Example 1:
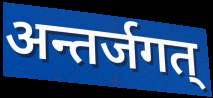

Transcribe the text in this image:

अन्तर्जगत्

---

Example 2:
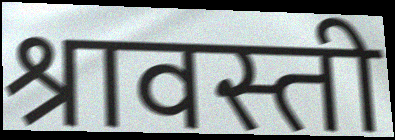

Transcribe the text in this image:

श्रावस्ती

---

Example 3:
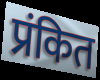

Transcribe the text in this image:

प्रंकित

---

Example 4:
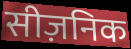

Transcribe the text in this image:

सीज़निक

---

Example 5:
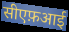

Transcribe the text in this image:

सीएफ़आई